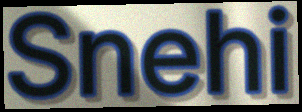
Snehi